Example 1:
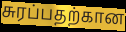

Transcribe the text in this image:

சுரப்பதற்கான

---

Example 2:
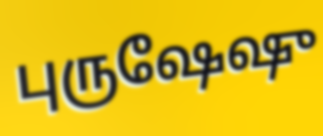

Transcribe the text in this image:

புருஷேஷு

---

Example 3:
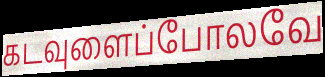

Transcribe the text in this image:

கடவுளைப்போலவே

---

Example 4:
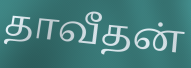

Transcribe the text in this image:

தாவீதன்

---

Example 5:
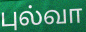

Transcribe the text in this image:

புல்வா